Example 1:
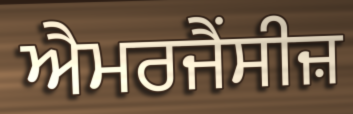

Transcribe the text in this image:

ਐਮਰਜੈਂਸੀਜ਼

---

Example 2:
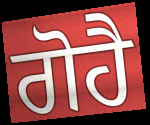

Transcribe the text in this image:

ਗੋਹੈ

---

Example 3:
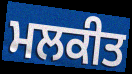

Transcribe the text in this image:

ਮਲਕੀਤ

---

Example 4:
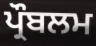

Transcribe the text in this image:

ਪ੍ਰੌਬਲਮ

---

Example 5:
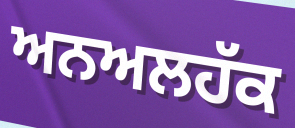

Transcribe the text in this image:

ਅਨਅਲਹੱਕ